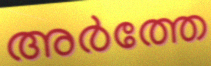
അർത്തേ